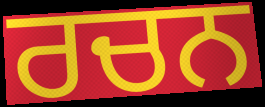
ਰਚਨ